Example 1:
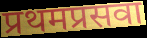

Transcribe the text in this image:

प्रथमप्रसवा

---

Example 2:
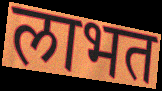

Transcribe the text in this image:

लाभत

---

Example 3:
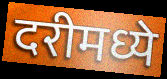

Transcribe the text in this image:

दरीमध्ये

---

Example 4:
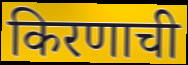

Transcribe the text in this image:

किरणाची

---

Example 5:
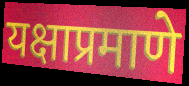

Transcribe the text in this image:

यक्षाप्रमाणे